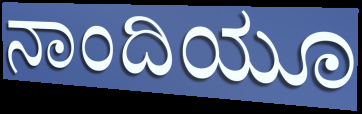
ನಾಂದಿಯೂ